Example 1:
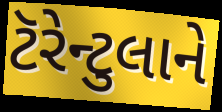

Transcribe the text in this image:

ટૅરેન્ટુલાને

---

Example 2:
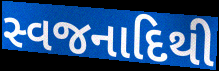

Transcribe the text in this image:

સ્વજનાદિથી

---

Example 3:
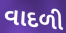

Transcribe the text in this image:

વાદળી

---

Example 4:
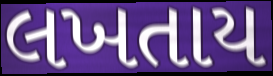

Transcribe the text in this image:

લખતાય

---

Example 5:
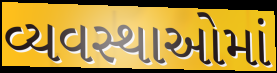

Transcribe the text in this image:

વ્યવસ્થાઓમાં